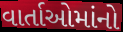
વાર્તાઓમાંનો